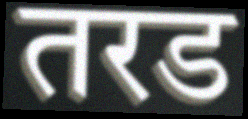
तरड